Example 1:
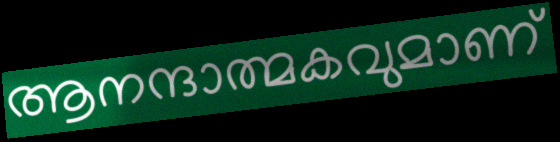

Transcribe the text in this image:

ആനന്ദാത്മകവുമാണ്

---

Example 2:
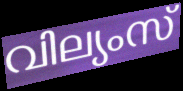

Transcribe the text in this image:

വില്യംസ്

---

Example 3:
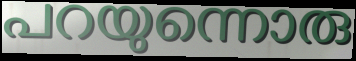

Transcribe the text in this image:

പറയുന്നൊരു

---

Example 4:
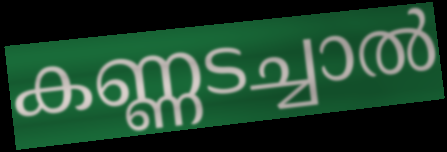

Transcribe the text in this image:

കണ്ണടച്ചാൽ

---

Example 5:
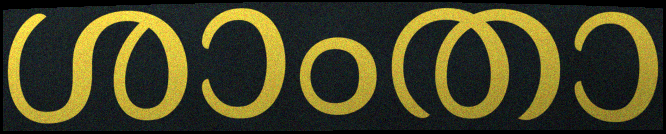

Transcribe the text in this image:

ശാംതാ